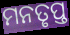
ମନତୃପ୍ତ